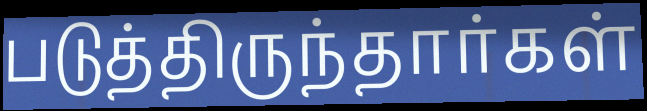
படுத்திருந்தார்கள்